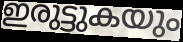
ഇരുട്ടുകയും